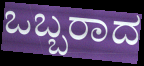
ಒಬ್ಬರಾದ